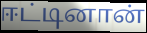
ஈட்டினான்